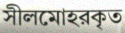
সীলমোহরকৃত